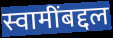
स्वामींबद्दल